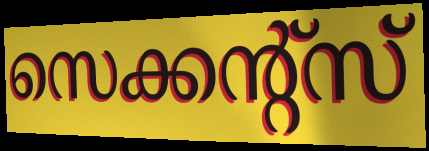
സെക്കന്റ്സ്